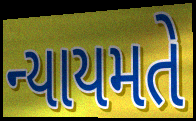
ન્યાયમતે